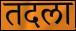
तदला